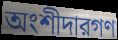
অংশীদারগণ